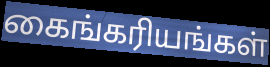
கைங்கரியங்கள்